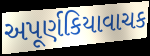
અપૂર્ણકિયાવાચક